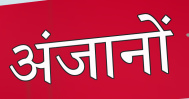
अंजानों